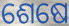
ଶେଷେ